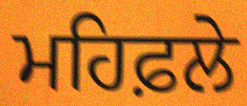
ਮਹਿਫ਼ਲੇ